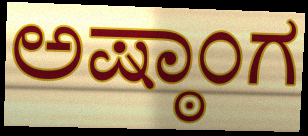
ಅಷ್ಠಾಂಗ